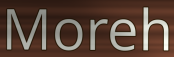
Moreh